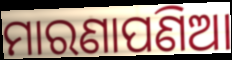
ମାରଣାପଣିଆ